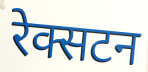
रेक्सटन